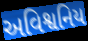
અવિશ્વનિય